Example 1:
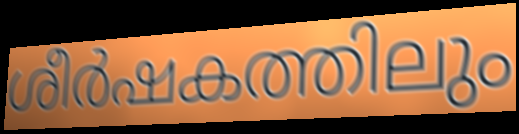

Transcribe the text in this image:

ശീർഷകത്തിലും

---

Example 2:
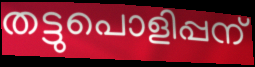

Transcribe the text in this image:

തട്ടുപൊളിപ്പന്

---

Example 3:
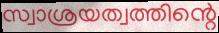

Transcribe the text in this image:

സ്വാശ്രയത്വത്തിന്റെ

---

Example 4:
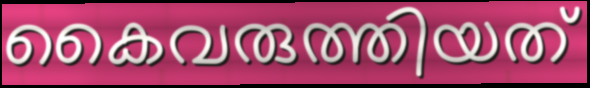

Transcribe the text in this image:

കൈവരുത്തിയത്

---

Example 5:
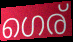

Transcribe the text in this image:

ഗെര്